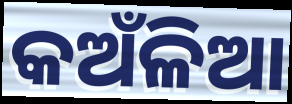
କଅଁଳିଆ